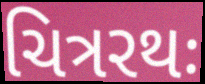
ચિત્રરથઃ